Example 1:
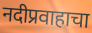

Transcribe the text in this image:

नदीप्रवाहाचा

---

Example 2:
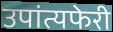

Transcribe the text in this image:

उपांत्यफेरी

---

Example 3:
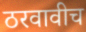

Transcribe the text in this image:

ठरवावीच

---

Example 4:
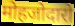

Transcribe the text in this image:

मोहजोदारो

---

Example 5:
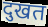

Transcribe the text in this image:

दुखत